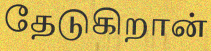
தேடுகிறான்